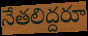
నేతలిద్దరూ